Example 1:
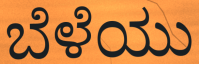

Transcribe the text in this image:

ಬೆಳೆಯು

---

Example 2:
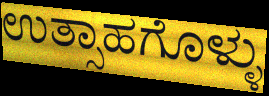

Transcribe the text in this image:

ಉತ್ಸಾಹಗೊಳ್ಳು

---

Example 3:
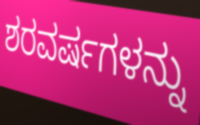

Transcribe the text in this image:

ಶರವರ್ಷಗಳನ್ನು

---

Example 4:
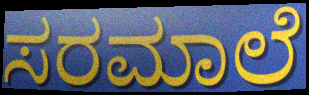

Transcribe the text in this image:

ಸರಮಾಲೆ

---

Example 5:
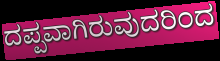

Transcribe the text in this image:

ದಪ್ಪವಾಗಿರುವುದರಿಂದ